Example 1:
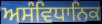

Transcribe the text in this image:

ਅਸੰਵਿਧਾਨਿਕ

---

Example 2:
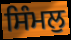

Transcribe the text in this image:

ਸਿੰਮਲੁ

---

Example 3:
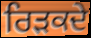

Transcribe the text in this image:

ਰਿੜਕਦੇ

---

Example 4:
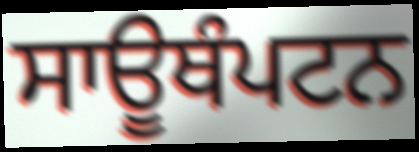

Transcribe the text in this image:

ਸਾਊਥੰਪਟਨ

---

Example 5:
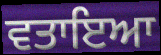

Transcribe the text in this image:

ਵਤਾਇਆ